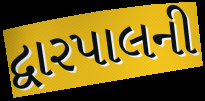
દ્વારપાલની